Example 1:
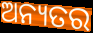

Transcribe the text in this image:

ଅନ୍ୟତର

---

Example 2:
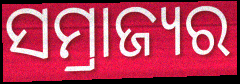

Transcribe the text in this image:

ସମ୍ରାଜ୍ୟର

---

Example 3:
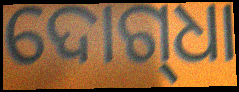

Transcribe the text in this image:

ଦୋଗ୍‌ଧା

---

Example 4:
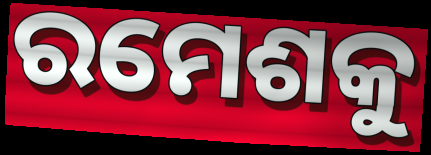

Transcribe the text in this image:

ରମେଶକୁ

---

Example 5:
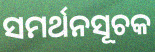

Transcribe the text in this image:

ସମର୍ଥନସୂଚକ